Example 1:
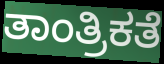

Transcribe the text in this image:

ತಾಂತ್ರಿಕತೆ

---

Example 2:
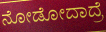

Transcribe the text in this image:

ನೋಡೋದಾದ್ರೆ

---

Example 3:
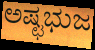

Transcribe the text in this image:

ಅಷ್ಟಭುಜ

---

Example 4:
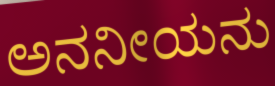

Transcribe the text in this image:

ಅನನೀಯನು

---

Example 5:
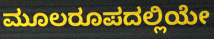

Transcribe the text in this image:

ಮೂಲರೂಪದಲ್ಲಿಯೇ